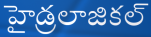
హైడ్రలాజికల్